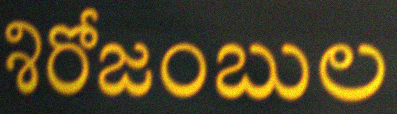
శిరోజంబుల